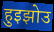
हुइझोउ